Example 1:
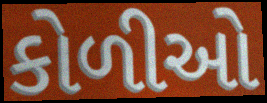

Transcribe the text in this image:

કોળીઓ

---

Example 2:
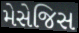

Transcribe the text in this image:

મેસેજિસ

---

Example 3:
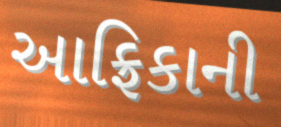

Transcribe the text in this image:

આફ્રિકાની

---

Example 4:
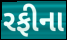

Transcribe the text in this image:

રફીના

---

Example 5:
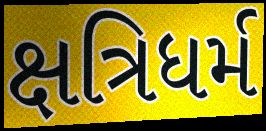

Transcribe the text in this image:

ક્ષત્રિધર્મ